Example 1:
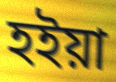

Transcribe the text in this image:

হইয়া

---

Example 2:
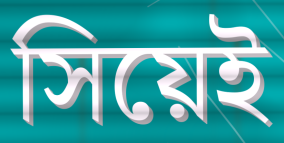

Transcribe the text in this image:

সিয়েই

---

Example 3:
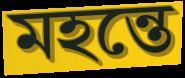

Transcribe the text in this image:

মহন্তে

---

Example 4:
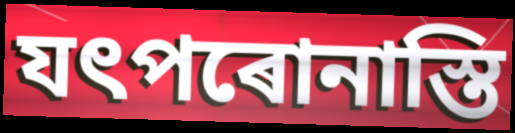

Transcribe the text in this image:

যৎপৰোনাস্তি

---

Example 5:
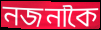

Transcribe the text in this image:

নজনাকৈ